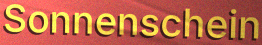
Sonnenschein